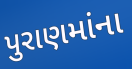
પુરાણમાંના